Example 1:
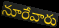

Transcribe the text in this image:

నూరేవారు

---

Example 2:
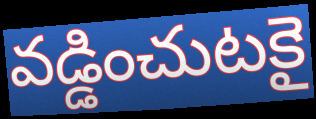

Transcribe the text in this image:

వడ్డించుటకై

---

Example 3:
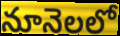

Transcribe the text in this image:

నూనెలలో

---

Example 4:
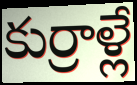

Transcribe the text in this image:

కుర్రాళ్లే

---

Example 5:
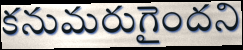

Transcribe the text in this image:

కనుమరుగైందని